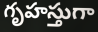
గృహస్తుగా